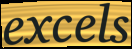
excels